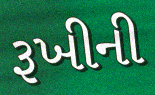
રૂખીની